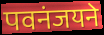
पवनंजयने